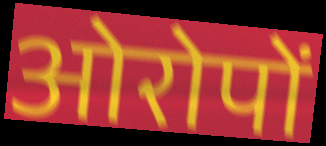
ओरोपों